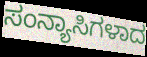
ಸಂನ್ಯಾಸಿಗಳಾದ